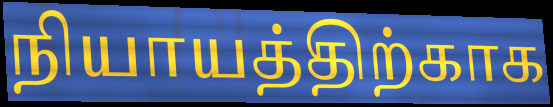
நியாயத்திற்காக